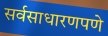
सर्वसाधारणपणे